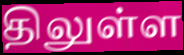
திலுள்ள